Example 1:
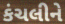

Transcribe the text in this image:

કંચલીને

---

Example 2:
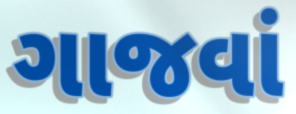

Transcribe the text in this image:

ગાજવાં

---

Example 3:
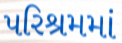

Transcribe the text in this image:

પરિશ્રમમાં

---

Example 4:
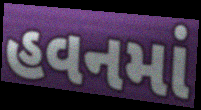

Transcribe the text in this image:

હવનમાં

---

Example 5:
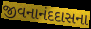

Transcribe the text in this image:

જીવનાનંદદાસના